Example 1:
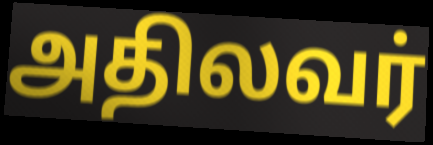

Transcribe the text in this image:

அதிலவர்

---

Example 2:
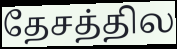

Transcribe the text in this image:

தேசத்தில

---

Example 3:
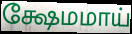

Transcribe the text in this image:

க்ஷேமமாய்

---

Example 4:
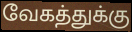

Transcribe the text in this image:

வேகத்துக்கு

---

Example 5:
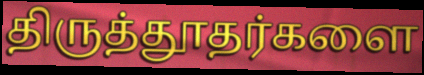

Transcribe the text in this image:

திருத்தூதர்களை